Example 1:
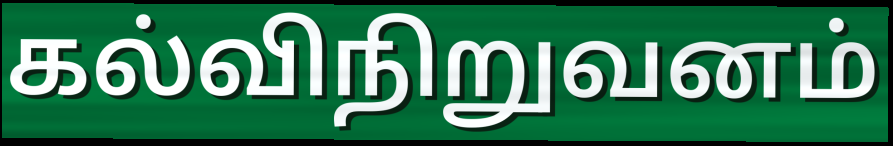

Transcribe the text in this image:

கல்விநிறுவனம்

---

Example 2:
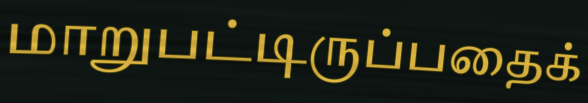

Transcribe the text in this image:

மாறுபட்டிருப்பதைக்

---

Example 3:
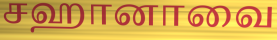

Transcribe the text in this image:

சஹானாவை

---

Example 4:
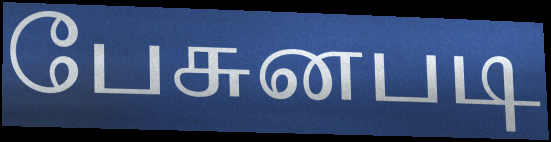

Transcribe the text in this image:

பேசுனபடி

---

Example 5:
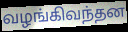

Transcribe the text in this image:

வழங்கிவந்தன